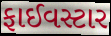
ફાઈવસ્ટાર